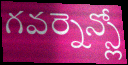
గవర్నెన్స్లో